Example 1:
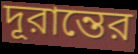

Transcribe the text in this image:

দূরান্তের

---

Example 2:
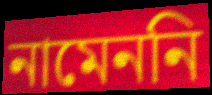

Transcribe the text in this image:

নামেননি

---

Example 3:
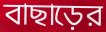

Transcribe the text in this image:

বাছাড়ের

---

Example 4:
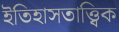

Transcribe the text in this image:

ইতিহাসতাত্ত্বিক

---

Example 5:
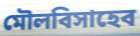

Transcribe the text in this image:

মৌলবিসাহেব